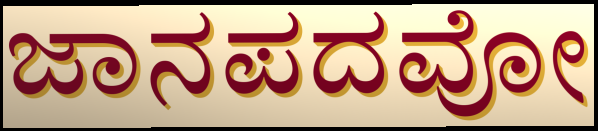
ಜಾನಪದವೋ